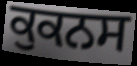
ਕੁਕਨਸ